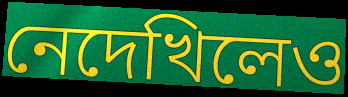
নেদেখিলেও